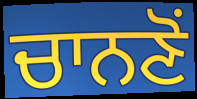
ਚਾਨਣੋਂ